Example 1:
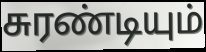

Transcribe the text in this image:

சுரண்டியும்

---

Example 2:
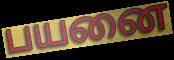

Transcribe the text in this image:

பயனை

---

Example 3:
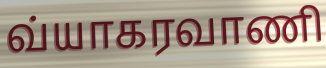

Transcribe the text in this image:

வ்யாகரவாணி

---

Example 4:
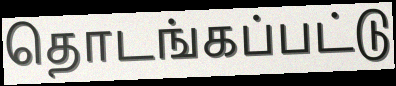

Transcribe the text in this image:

தொடங்கப்பட்டு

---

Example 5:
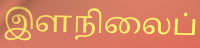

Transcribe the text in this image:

இளநிலைப்